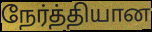
நேர்த்தியான